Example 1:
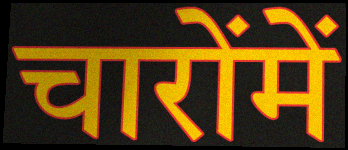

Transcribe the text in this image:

चारोंमें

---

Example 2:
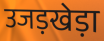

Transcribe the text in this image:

उजड़खेड़ा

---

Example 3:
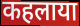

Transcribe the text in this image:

कहलाया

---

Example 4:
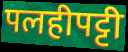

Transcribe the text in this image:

पलहीपट्टी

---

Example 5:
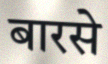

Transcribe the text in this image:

बारसे